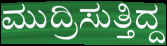
ಮುದ್ರಿಸುತ್ತಿದ್ದ